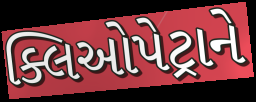
ક્લિઓપેટ્રાને